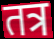
तत्र